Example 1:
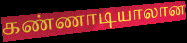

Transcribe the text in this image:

கண்ணாடியாலான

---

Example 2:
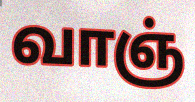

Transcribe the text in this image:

வாஞ்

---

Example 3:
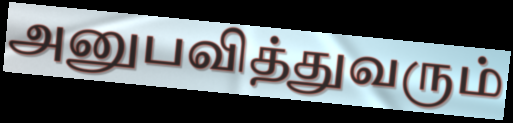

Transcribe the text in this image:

அனுபவித்துவரும்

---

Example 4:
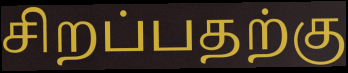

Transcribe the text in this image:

சிறப்பதற்கு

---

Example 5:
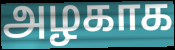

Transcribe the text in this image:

அழகாக